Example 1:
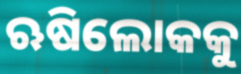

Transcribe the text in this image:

ଋଷିଲୋକକୁ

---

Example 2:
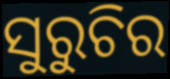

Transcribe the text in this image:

ସୁରୁଚିର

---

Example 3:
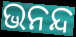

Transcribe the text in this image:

ଭନନ୍ଦ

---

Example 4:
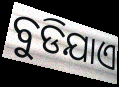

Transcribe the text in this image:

ବୁଡିଯାଏ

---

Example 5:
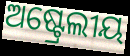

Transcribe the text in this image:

ଅଷ୍ଟ୍ରେଲୀୟ